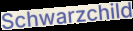
Schwarzchild